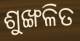
ଶୁଙ୍ଖଳିତ